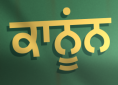
ਕਾਨੂਂਨ